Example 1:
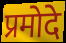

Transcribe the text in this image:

प्रमोदे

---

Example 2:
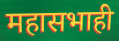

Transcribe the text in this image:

महासभाही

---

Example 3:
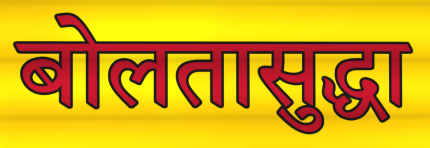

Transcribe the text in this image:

बोलतासुद्धा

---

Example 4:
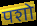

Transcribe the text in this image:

पशो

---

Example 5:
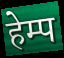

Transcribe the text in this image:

हेम्प